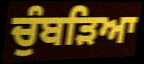
ਚੁੰਬੜਿਆ